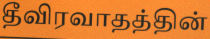
தீவிரவாதத்தின்